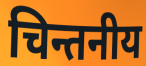
चिन्तनीय